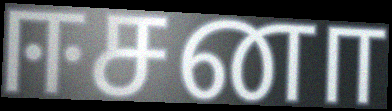
ஈசனா